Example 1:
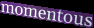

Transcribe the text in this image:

momentous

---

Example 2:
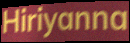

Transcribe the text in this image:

Hiriyanna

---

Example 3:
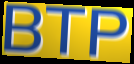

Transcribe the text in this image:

BTP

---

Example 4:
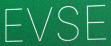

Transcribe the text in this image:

EVSE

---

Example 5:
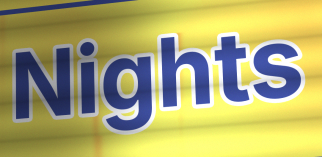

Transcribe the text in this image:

Nights